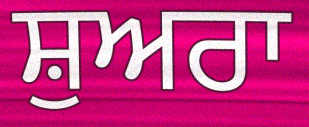
ਸ਼ੁਅਰਾ